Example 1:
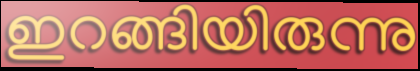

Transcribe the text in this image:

ഇറങ്ങിയിരുന്നു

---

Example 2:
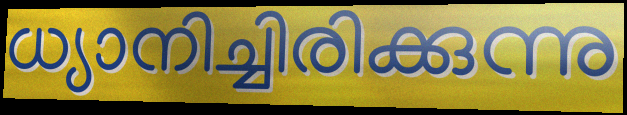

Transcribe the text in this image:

ധ്യാനിച്ചിരിക്കുന്നു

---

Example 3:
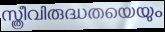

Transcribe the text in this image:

സ്ത്രീവിരുദ്ധതയെയും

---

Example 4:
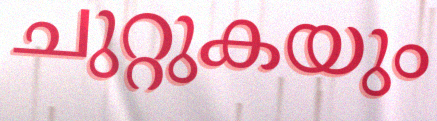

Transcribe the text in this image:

ചുറ്റുകയും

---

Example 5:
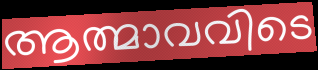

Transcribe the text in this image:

ആത്മാവവിടെ